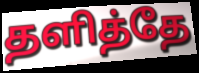
தளித்தே